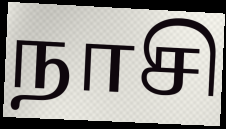
நாசி